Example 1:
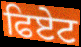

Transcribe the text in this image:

ਫਿਏਟ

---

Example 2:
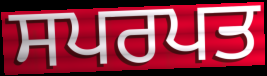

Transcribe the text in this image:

ਸਪਰਪਤ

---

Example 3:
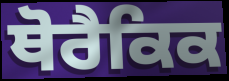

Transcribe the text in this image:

ਥੋਰੈਕਿਕ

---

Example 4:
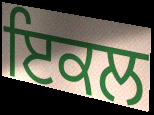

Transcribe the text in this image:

ਇਕਲ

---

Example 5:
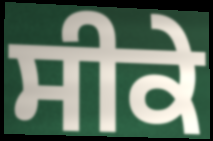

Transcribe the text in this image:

ਸੀਕੇ